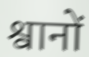
श्वानों